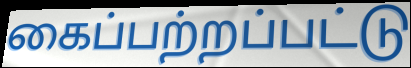
கைப்பற்றப்பட்டு